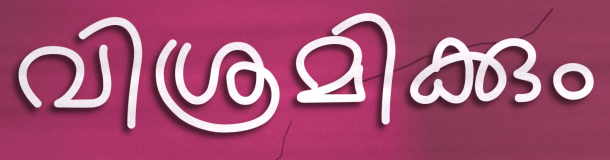
വിശ്രമിക്കും